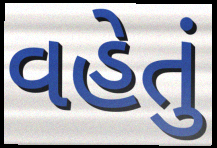
વહેતું